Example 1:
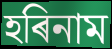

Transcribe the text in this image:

হৰিনাম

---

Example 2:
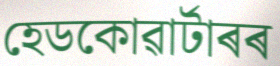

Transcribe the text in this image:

হেডকোৱাৰ্টাৰৰ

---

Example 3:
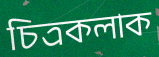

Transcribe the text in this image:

চিত্ৰকলাক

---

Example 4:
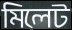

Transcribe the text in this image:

মিলেট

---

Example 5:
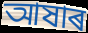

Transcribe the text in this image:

আষাৰ